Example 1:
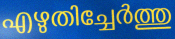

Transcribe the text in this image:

എഴുതിച്ചേർത്തു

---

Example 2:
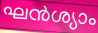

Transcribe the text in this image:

ഘൻശ്യാം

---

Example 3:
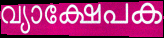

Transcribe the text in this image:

വ്യാക്ഷേപക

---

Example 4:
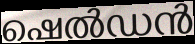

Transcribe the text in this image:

ഷെൽഡൻ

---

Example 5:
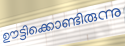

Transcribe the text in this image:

ഊട്ടിക്കൊണ്ടിരുന്നു